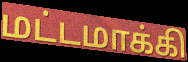
மட்டமாக்கி